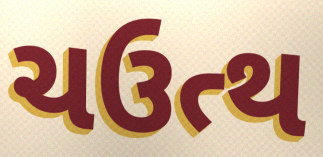
ચઉત્થ